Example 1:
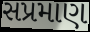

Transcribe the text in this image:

સપ્રમાણ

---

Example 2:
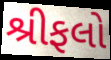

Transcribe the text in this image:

શ્રીફલો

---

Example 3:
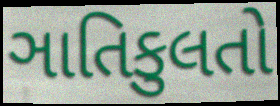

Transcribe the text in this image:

ઞાતિકુલતો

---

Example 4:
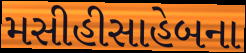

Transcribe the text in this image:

મસીહીસાહેબના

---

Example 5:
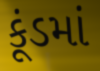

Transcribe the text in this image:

કૂંડમાં